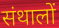
संथालों